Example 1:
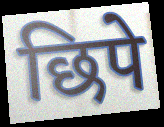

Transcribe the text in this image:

छिपे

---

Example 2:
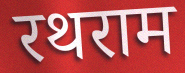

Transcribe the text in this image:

रथराम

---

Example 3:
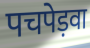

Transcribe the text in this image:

पचपेड़वा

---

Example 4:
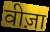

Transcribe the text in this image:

वीज़ा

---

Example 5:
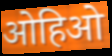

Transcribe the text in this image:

ओहिओ